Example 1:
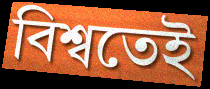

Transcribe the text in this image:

বিশ্বতেই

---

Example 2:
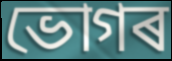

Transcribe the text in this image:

ভোগৰ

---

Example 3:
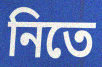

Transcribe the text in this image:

নিতে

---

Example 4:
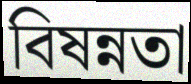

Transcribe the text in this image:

বিষন্নতা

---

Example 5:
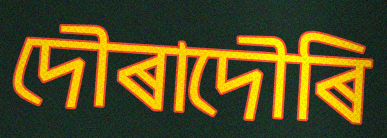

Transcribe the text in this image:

দৌৰাদৌৰি